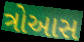
ત્રોઆસ